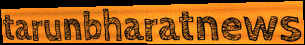
tarunbharatnews